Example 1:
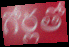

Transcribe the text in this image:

గోర్లతో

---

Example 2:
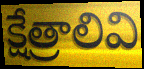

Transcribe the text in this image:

క్షేత్రాలివి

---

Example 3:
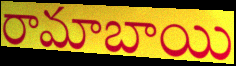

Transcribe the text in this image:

రామాబాయి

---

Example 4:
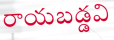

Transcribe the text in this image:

రాయబడ్డవి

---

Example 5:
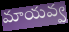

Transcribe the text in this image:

మాయవ్వ